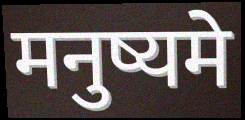
मनुष्यमे